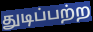
துடிப்பற்ற